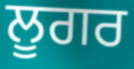
ਲੂਗਰ